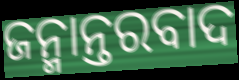
ଜନ୍ମାନ୍ତରବାଦ